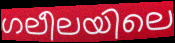
ഗലീലയിലെ